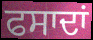
ਫਸਾਦਾਂ